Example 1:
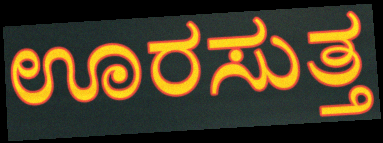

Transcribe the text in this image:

ಊರಸುತ್ತ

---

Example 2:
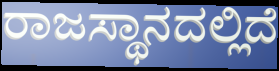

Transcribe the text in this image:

ರಾಜಸ್ಥಾನದಲ್ಲಿದೆ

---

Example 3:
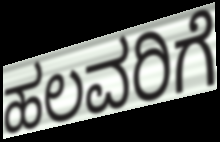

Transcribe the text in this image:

ಹಲವರಿಗೆ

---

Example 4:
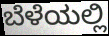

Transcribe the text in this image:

ಬೆಳೆಯಲ್ಲಿ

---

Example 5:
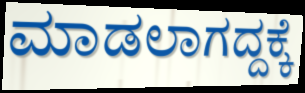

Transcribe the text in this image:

ಮಾಡಲಾಗದ್ದಕ್ಕೆ